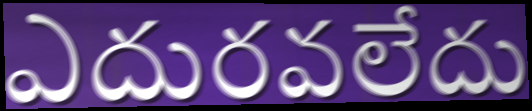
ఎదురవలేదు